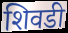
शिवडी